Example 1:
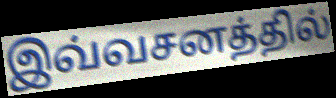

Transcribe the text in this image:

இவ்வசனத்தில்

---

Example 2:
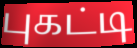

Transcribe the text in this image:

புகட்டி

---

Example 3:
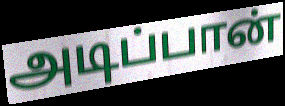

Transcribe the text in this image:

அடிப்பான்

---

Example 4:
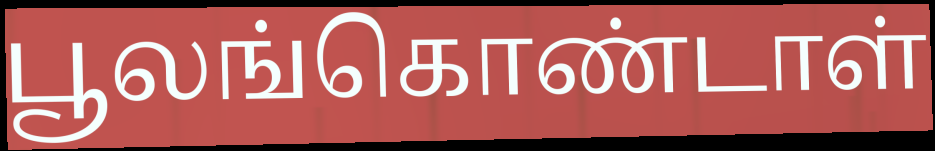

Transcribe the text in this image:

பூலங்கொண்டாள்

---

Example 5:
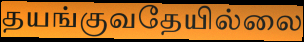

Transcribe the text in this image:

தயங்குவதேயில்லை